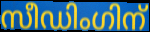
സീഡിംഗിന്